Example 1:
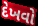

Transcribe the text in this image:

દેખવો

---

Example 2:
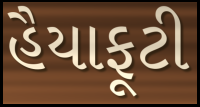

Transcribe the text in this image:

હૈયાફૂટી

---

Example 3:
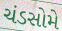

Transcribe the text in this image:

ચંડસોમે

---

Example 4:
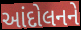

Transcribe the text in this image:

આંદોલનને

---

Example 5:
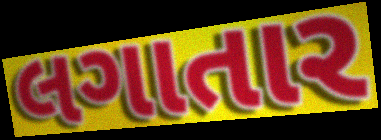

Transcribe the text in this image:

લગાતાર